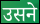
उसने